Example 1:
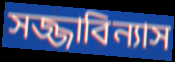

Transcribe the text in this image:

সজ্জাবিন্যাস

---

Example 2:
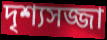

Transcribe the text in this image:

দৃশ্যসজ্জা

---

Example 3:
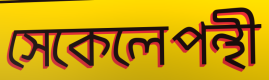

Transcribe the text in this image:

সেকেলেপন্থী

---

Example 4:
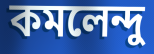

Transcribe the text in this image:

কমলেন্দু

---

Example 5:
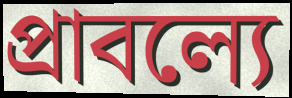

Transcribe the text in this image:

প্রাবল্যে